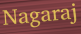
Nagaraj